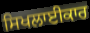
ਸਿਖਲਾਈਕਾਰ